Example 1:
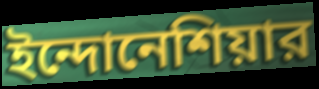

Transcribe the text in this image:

ইন্দোনেশিয়ার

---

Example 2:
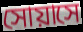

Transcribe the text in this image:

সোয়াসে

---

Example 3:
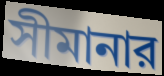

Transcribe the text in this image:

সীমানার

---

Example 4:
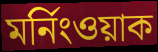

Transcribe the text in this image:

মর্নিংওয়াক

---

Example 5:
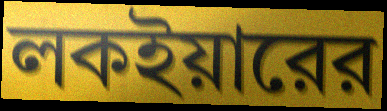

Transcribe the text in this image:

লকইয়ারের